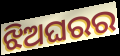
ଝିଅଘରର